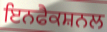
ਇਨਫੈਕਸ਼ਨਲ